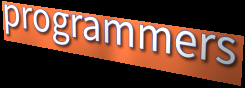
programmers